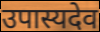
उपास्यदेव